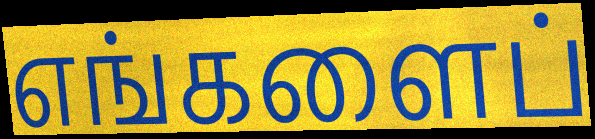
எங்களைப்